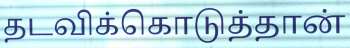
தடவிக்கொடுத்தான்